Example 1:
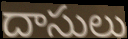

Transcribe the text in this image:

దాసులు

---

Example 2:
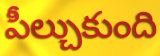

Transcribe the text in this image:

పీల్చుకుంది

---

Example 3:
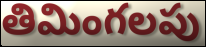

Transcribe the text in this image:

తిమింగలపు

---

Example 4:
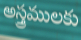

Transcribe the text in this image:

అస్త్రములకు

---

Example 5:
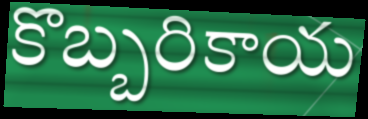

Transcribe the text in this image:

కొబ్బరికాయ